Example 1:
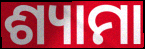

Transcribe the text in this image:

ଶ୍ୟାମା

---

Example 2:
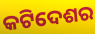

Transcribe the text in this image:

କଟିଦେଶର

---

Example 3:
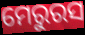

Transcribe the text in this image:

ମେରୁରସ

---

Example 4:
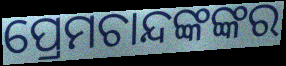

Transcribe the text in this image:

ପ୍ରେମଚାନ୍ଦଙ୍କଙ୍କର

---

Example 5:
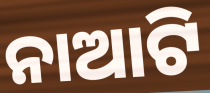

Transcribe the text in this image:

ନାଆଟି